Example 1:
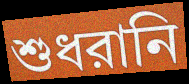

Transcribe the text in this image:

শুধরানি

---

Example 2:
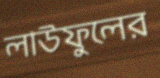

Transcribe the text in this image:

লাউফুলের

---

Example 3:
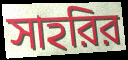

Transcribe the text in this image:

সাহরির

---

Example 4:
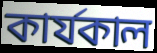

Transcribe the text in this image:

কার্যকাল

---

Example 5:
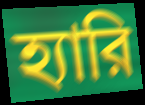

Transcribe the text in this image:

হ্যারি